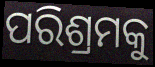
ପରିଶ୍ରମକୁ